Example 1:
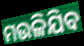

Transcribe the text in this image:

ମଉଳିଯିବ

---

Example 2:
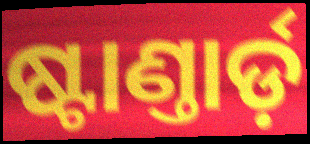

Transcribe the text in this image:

ଷ୍ଟାଣ୍ତାର୍ଡ଼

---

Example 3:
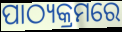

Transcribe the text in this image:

ପାଠ୍ୟକ୍ରମରେ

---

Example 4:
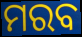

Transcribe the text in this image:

ମରବ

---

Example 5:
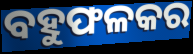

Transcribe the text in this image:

ବହୁଫଳକର